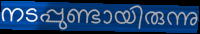
നടപ്പുണ്ടായിരുന്നു